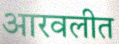
आरवलीत